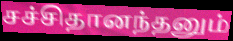
சச்சிதானந்தனும்